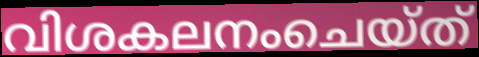
വിശകലനംചെയ്ത്